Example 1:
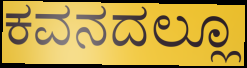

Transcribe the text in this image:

ಕವನದಲ್ಲೂ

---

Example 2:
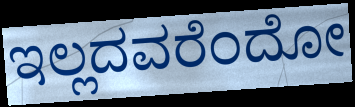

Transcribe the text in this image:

ಇಲ್ಲದವರೆಂದೋ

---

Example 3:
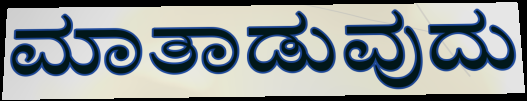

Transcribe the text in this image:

ಮಾತಾಡುವುದು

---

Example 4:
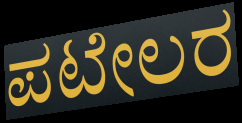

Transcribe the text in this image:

ಪಟೇಲರ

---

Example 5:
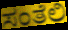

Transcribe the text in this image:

ಸಂತೆಲಿ